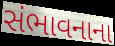
સંભાવનાના